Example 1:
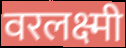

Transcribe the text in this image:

वरलक्ष्‍मी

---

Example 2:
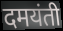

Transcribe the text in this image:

दमयंती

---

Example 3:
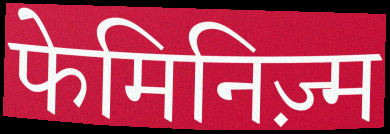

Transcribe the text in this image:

फेमिनिज़्म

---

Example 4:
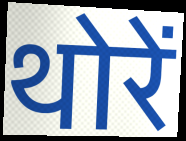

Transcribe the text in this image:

थोरें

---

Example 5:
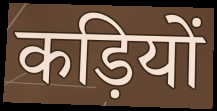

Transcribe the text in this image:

कड़ियों